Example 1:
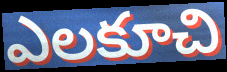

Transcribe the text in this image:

ఎలకూచి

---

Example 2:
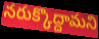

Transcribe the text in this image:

నరుక్కొద్దామని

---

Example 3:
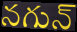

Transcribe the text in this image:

నగున్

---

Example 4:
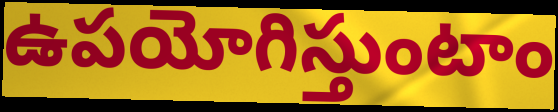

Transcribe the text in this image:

ఉపయోగిస్తుంటాం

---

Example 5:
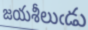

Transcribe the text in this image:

జయశీలుఁడు